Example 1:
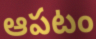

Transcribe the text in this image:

ఆపటం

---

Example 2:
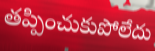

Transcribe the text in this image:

తప్పించుకుపోలేదు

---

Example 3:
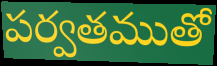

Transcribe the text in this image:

పర్వతముతో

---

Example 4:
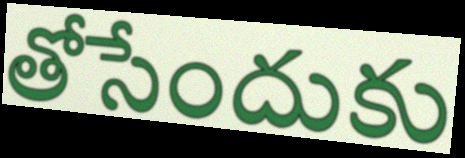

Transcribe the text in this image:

తోసేందుకు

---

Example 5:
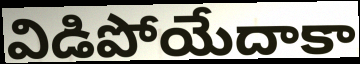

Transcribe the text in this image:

విడిపోయేదాకా